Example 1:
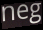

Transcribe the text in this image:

neg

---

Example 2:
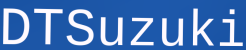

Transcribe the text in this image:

DTSuzuki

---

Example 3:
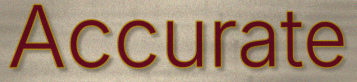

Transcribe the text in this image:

Accurate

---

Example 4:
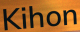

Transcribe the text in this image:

Kihon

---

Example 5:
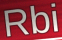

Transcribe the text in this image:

Rbi